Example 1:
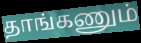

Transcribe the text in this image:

தாங்கணும்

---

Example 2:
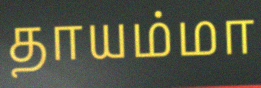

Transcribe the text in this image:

தாயம்மா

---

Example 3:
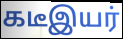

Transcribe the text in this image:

கடீஇயர்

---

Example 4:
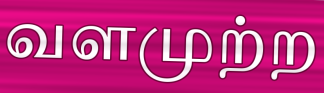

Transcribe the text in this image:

வளமுற்ற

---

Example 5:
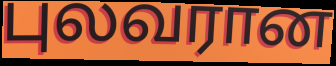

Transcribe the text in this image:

புலவரான